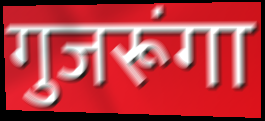
गुजरूंगा